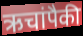
ऋचांपैकी